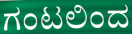
ಗಂಟಲಿಂದ